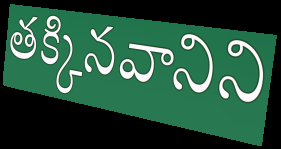
తక్కినవానిని